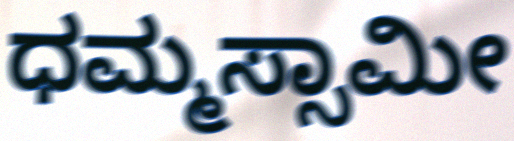
ಧಮ್ಮಸ್ಸಾಮೀ